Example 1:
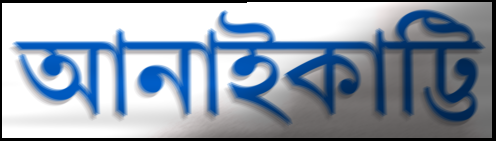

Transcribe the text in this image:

আনাইকাট্টি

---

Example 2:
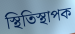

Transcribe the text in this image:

স্থিতিস্থাপক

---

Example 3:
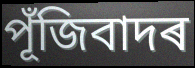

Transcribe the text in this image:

পূঁজিবাদৰ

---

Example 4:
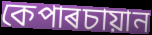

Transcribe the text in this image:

কেপাৰচায়ান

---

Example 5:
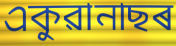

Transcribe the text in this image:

একুৱানাছৰ